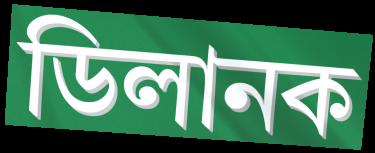
ডিলানক